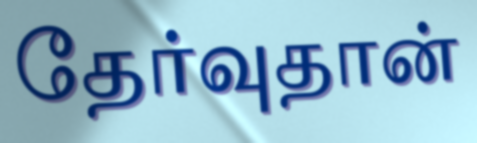
தேர்வுதான்